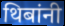
थिबांनी